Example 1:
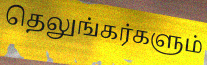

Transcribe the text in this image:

தெலுங்கர்களும்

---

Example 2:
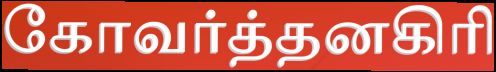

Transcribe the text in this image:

கோவர்த்தனகிரி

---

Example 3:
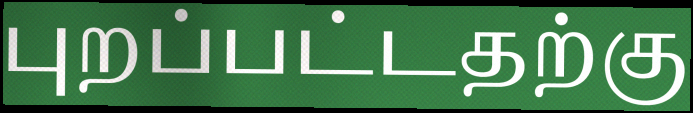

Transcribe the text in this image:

புறப்பட்டதற்கு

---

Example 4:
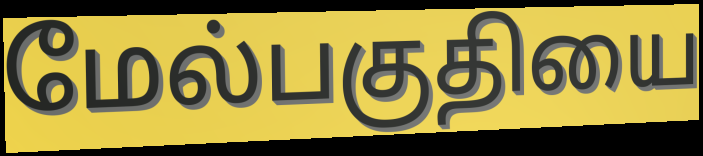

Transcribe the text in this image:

மேல்பகுதியை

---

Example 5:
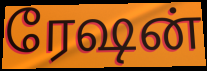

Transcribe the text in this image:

ரேஷன்